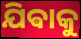
ଯିଵାକୁ